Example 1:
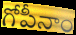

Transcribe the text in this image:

గోపీనాం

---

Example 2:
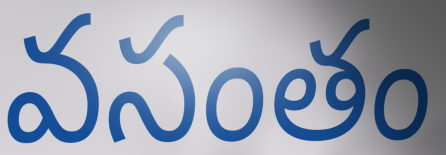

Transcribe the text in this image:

వసంతం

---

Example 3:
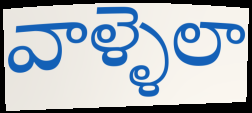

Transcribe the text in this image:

వాళ్ళెలా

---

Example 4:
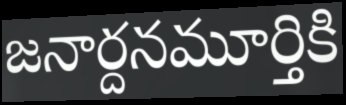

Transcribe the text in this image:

జనార్దనమూర్తికి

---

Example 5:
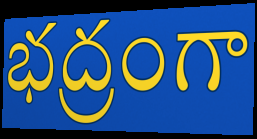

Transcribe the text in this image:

భద్రంగా